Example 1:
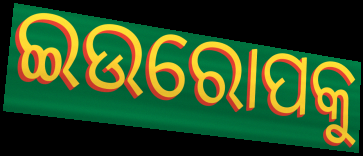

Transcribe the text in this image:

ଇଉରୋପକୁ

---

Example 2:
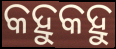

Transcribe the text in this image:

କହୁକହୁ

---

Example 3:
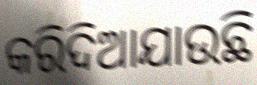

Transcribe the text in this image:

କରିଦିଆଯାଉଛି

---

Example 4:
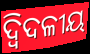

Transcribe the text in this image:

ଦ୍ବିଦଳୀୟ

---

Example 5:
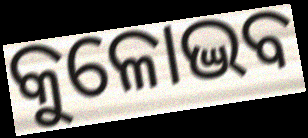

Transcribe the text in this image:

କୁଳୋଦ୍ଭବ